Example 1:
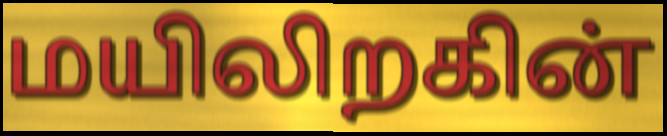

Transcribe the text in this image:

மயிலிறகின்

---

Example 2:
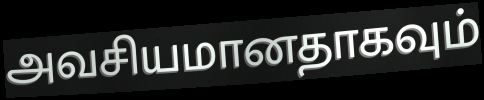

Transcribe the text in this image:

அவசியமானதாகவும்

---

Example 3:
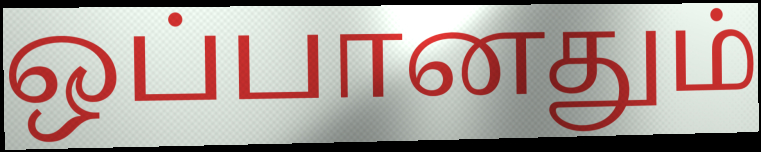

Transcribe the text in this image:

ஒப்பானதும்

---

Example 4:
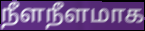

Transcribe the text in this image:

நீளநீளமாக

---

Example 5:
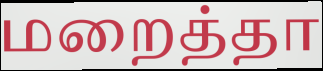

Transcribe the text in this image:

மறைத்தா